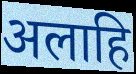
अलाहि